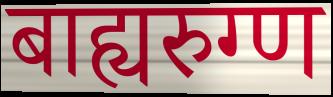
बाह्यरुग्ण